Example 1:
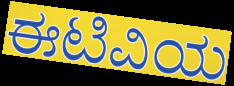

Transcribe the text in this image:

ಈಟಿವಿಯ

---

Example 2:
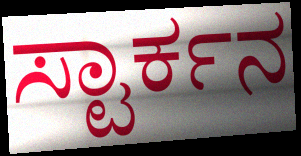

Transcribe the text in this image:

ಸ್ಟಾರ್ಕನ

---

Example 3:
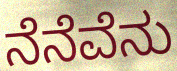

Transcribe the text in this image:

ನೆನೆವೆನು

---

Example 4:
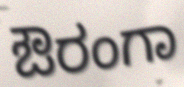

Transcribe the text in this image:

ಔರಂಗಾ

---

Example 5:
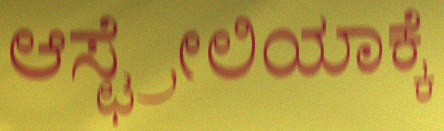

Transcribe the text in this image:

ಆಸ್ಟ್ರೇಲಿಯಾಕ್ಕೆ